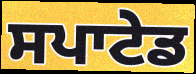
ਸਪਾਟੇਡ